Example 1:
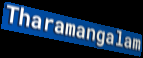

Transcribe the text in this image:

Tharamangalam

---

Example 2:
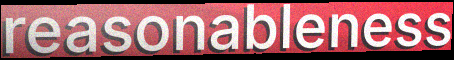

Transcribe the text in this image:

reasonableness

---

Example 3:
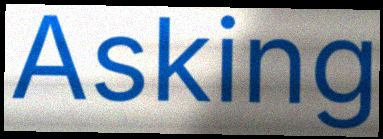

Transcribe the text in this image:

Asking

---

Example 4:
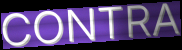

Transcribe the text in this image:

CONTRA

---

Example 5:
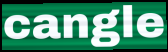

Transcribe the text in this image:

cangle